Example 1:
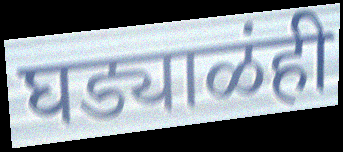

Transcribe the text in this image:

घड्याळंही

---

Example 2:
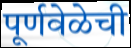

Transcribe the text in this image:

पूर्णवेळेची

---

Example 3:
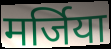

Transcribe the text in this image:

मर्जिया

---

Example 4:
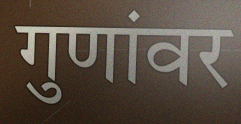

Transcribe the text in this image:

गुणांवर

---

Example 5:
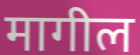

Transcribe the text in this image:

मागील